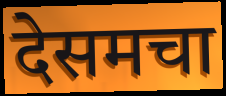
देसमचा